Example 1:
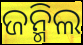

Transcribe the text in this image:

ଜନ୍ମିଲ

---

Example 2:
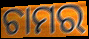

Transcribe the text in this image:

ଚାମର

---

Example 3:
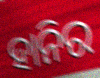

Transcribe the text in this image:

ହାନିର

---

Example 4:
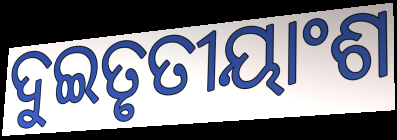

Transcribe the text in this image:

ଦୁଇତୃତୀୟାଂଶ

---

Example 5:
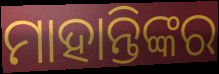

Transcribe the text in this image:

ମାହାନ୍ତିଙ୍କର